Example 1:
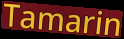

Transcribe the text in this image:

Tamarin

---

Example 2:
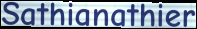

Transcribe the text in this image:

Sathianathier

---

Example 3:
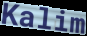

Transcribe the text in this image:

Kalim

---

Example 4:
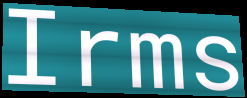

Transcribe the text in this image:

Irms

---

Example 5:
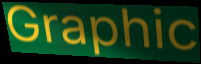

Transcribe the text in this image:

Graphic